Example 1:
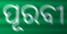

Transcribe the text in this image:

ପୂରବୀ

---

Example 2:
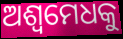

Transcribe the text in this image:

ଅଶ୍ୱମେଧକୁ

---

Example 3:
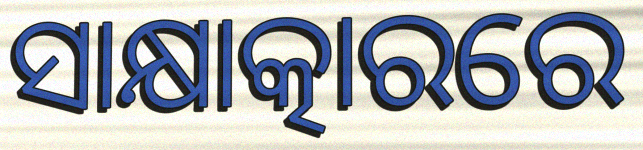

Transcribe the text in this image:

ସାକ୍ଷାତ୍କାରରେ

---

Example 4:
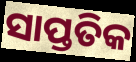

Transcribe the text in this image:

ସାପ୍ତତିକ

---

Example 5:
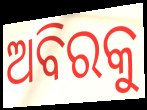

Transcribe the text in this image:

ଅବିରକୁ